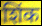
शिंक